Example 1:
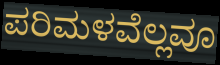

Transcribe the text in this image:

ಪರಿಮಳವೆಲ್ಲವೂ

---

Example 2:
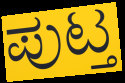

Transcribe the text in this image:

ಪುಟ್ತ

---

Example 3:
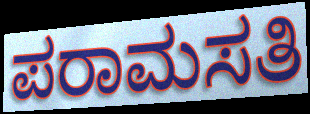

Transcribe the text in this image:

ಪರಾಮಸತಿ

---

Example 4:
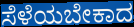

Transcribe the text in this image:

ಸೆಳೆಯಬೇಕಾದ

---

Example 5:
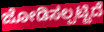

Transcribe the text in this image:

ಜೋಡಿಸಲ್ಪಟ್ಟಿದೆ